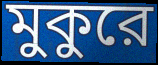
মুকুরে